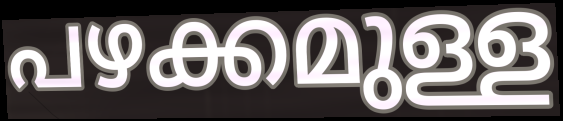
പഴക്കമുള്ള